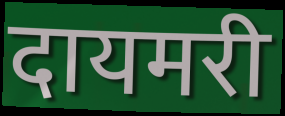
दायमरी